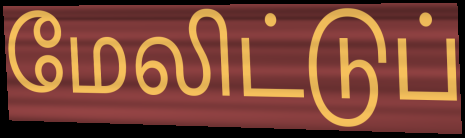
மேலிட்டுப்